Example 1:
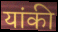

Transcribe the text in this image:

यांकी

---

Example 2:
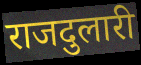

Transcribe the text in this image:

राजदुलारी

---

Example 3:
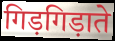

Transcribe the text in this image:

गिड़गिड़ाते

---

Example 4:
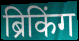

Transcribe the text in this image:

ब्रिकिंग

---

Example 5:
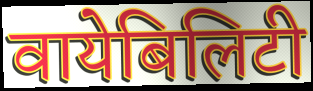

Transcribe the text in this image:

वायेबिलिटी